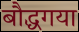
बौद्धगया